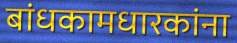
बांधकामधारकांना